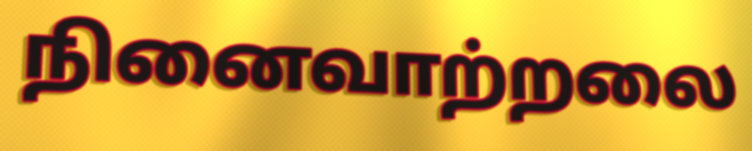
நினைவாற்றலை